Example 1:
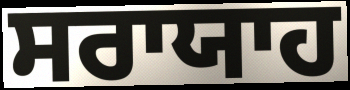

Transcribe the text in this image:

ਸਰਾਯਾਹ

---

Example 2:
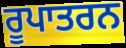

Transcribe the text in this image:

ਰੂਪਾਤਰਨ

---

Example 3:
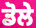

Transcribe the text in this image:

ਡੋਲੇ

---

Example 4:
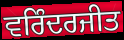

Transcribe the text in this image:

ਵਰਿੰਦਰਜੀਤ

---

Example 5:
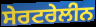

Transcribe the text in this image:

ਸੇਰਟਰੇਲੀਨ